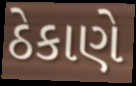
ઠેકાણે